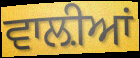
ਵਾਲ਼ੀਆਂ